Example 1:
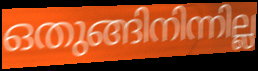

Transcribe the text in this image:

ഒതുങ്ങിനിന്നില്ല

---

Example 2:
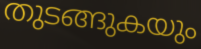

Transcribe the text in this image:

തുടങ്ങുകയും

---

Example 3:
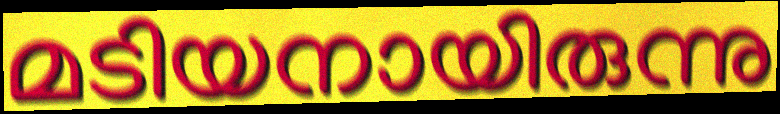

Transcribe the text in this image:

മടിയനായിരുന്നു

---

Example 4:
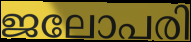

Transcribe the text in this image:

ജലോപരി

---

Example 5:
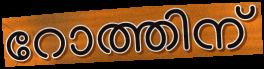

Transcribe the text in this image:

റോത്തിന്